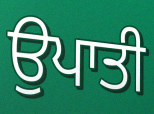
ਉਪਾਤੀ